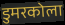
डुमरकोला